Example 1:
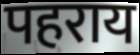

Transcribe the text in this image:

पहराय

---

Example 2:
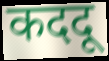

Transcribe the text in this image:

कददू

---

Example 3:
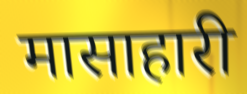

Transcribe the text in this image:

मासाहारी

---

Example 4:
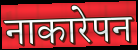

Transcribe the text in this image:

नाकारेपन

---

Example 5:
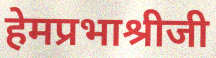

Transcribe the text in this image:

हेमप्रभाश्रीजी